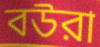
বউরা